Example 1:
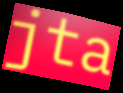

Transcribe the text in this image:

jta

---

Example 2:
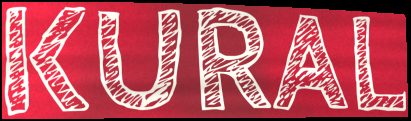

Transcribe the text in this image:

KURAL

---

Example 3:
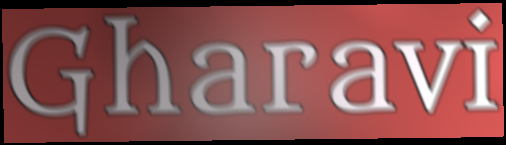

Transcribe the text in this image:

Gharavi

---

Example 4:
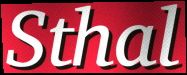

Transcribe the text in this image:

Sthal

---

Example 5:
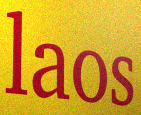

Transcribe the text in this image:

laos